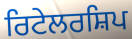
ਰਿਟੇਲਰਸ਼ਿਪ